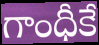
గాంధీకే